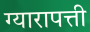
ग्यारापत्ती